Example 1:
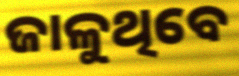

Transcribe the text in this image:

ଜାଳୁଥିବେ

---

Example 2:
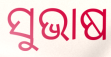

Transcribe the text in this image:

ସୁଭାଷ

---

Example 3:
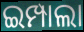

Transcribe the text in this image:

ଇମ୍ପାଲା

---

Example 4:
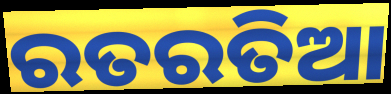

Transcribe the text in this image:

ରତରତିଆ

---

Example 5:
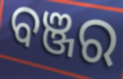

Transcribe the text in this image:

ବଞ୍ଜର